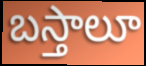
బస్తాలూ